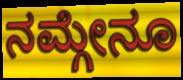
ನಮ್ಗೇನೂ